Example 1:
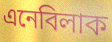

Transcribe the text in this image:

এনেবিলাক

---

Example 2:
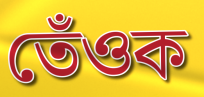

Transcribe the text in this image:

তেঁওক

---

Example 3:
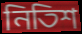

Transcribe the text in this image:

নিতিশ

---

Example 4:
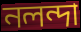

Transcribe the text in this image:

নলন্দা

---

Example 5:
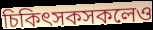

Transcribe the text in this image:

চিকিৎসকসকলেও